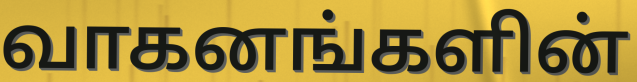
வாகனங்களின்